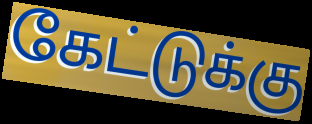
கேட்டுக்கு